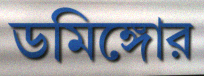
ডমিঙ্গোর